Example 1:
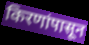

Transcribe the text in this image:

किरणांपासून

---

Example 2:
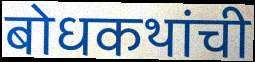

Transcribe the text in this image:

बोधकथांची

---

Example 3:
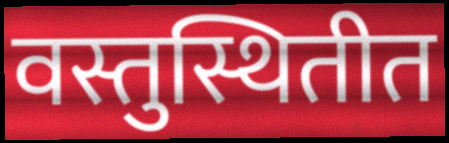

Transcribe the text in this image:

वस्तुस्थितीत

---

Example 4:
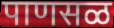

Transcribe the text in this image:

पाणसळ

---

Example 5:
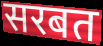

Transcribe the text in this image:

सरबत